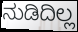
ನುಡಿದಿಲ್ಲ